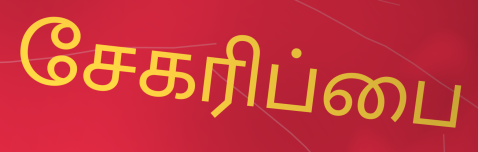
சேகரிப்பை